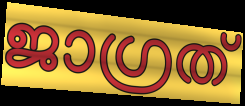
ജാഗ്രത്